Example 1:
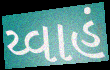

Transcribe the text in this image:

ય્વાહં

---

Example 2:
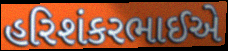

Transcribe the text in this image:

હરિશંકરભાઈએ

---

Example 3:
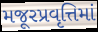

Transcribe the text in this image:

મજૂરપ્રવૃત્તિમાં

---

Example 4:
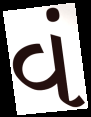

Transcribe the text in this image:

વં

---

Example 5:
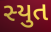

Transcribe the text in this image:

સ્યુત